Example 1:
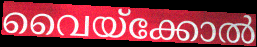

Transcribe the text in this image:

വൈയ്ക്കോൽ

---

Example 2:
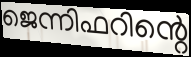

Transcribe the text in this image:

ജെന്നിഫറിന്റെ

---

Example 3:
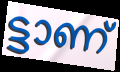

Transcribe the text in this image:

ട്ടാണ്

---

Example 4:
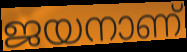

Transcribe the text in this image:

ജയനാണ്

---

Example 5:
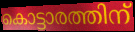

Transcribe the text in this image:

കൊട്ടാരത്തിന്